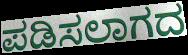
ಪಡಿಸಲಾಗದ